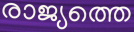
രാജ്യത്തെ